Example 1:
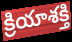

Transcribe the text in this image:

క్రియాశక్తి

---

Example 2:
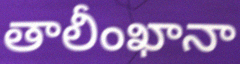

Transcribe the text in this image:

తాలీంఖానా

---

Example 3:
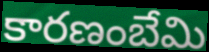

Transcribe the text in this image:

కారణంబేమి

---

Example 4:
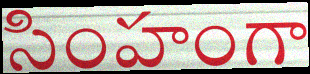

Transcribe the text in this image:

సింహంగా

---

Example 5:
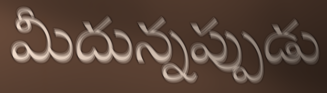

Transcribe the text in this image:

మీదున్నప్పుడు